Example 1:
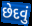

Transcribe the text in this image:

છેદવું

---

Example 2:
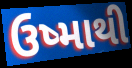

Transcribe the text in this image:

ઉષ્માથી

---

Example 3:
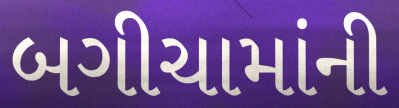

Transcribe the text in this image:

બગીચામાંની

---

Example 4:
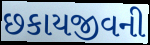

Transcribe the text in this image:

છકાયજીવની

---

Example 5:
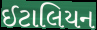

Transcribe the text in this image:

ઈટાલિયન